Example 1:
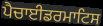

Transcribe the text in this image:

ਪੈਚਾਈਡਰਮਾਟਿਸ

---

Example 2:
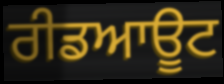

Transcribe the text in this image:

ਰੀਡਆਊਟ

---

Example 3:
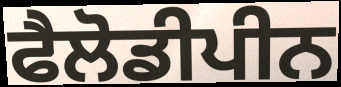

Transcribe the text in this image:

ਫੈਲੋਡੀਪੀਨ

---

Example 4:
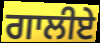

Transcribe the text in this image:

ਗਾਲੀਏ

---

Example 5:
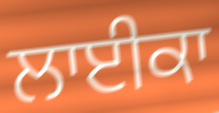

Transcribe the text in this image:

ਲਾਈਕਾ